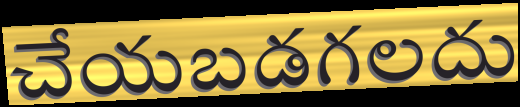
చేయబడగలదు